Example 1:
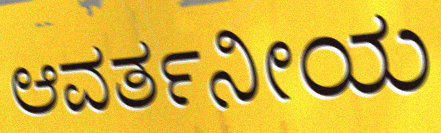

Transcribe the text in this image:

ಆವರ್ತನೀಯ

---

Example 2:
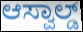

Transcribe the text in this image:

ಆಸ್ವಾಲ್ಡ್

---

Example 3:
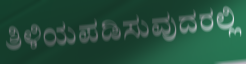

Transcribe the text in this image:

ತಿಳಿಯಪಡಿಸುವುದರಲ್ಲಿ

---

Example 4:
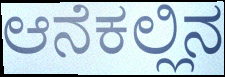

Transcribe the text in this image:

ಆನೆಕಲ್ಲಿನ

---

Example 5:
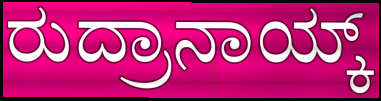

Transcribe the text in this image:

ರುದ್ರಾನಾಯ್ಕ್